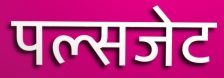
पल्सजेट